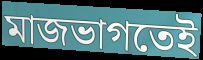
মাজভাগতেই